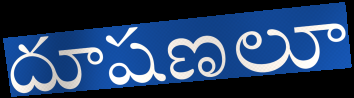
దూషణలూ